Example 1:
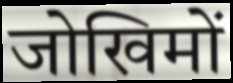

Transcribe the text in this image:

जोखिमों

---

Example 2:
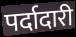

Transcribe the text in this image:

पर्दादारी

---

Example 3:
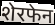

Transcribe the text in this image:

शेरफेन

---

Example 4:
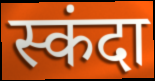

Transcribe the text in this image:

स्कंदा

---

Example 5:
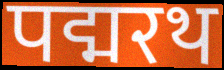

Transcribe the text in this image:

पद्मरथ